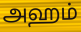
அஹம்